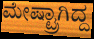
ಮೇಷ್ಟ್ರಾಗಿದ್ದ